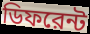
ডিফরেন্ট